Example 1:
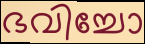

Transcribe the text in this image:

ഭവിച്ചോ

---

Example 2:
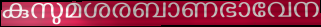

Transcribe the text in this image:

കുസുമശരബാണഭാവേന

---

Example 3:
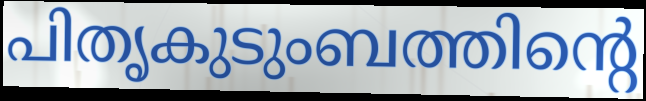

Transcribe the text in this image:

പിതൃകുടുംബത്തിന്റെ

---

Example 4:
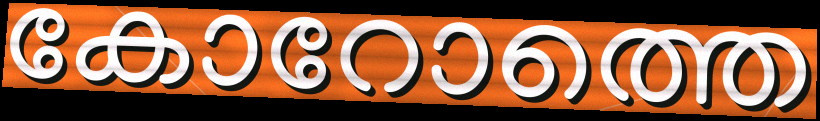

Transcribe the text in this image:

കോറോത്തെ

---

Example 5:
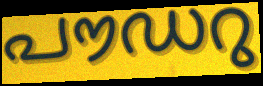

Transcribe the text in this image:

പൗഡറു